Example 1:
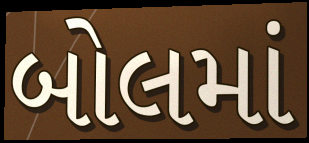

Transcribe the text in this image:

બોલમાં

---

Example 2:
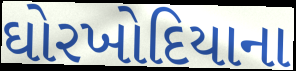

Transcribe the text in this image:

ઘોરખોદિયાના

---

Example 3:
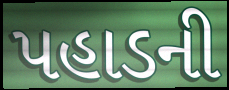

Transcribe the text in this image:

પહાડની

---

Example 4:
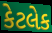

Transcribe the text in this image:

કેટલેક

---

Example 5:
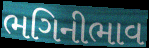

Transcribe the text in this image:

ભગિનીભાવ